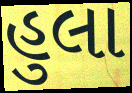
હુલા